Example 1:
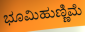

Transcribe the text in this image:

ಭೂಮಿಹುಣ್ಣಿಮೆ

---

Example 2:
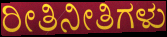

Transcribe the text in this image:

ರೀತಿನೀತಿಗಳು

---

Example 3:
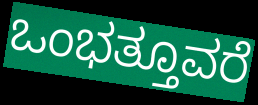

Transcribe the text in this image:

ಒಂಭತ್ತೂವರೆ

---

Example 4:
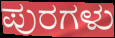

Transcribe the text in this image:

ಪುರಗಳು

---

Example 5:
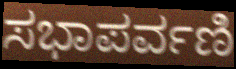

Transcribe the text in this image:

ಸಭಾಪರ್ವಣಿ